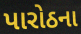
પારોઠના